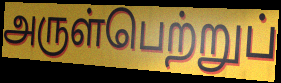
அருள்பெற்றுப்